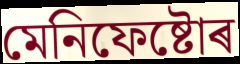
মেনিফেষ্টোৰ